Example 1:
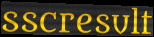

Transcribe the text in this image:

sscresult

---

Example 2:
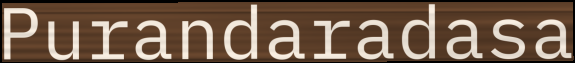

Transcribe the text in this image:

Purandaradasa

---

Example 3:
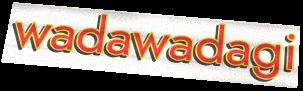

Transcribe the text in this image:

wadawadagi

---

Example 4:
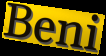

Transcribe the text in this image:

Beni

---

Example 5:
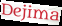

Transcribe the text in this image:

Dejima